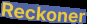
Reckoner